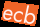
ecb